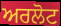
ਅਰਲੋਟ